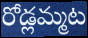
రోడ్లమ్మట